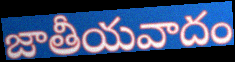
జాతీయవాదం